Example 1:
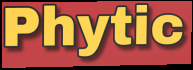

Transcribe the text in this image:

Phytic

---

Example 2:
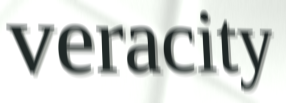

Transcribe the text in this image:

veracity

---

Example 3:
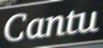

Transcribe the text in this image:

Cantu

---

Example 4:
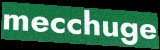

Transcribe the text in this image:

mecchuge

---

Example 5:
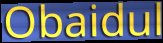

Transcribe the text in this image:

Obaidul